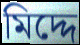
মিদ্দে